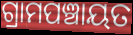
ଗ୍ରାମପଞ୍ଚାୟତ